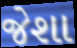
જેશા